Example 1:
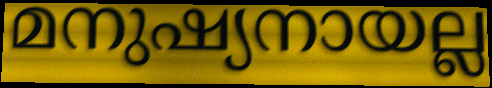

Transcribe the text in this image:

മനുഷ്യനായല്ല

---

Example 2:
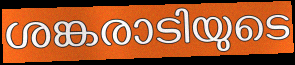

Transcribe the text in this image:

ശങ്കരാടിയുടെ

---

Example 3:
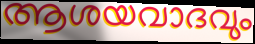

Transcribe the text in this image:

ആശയവാദവും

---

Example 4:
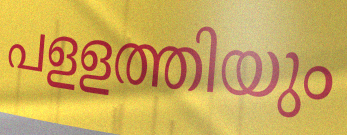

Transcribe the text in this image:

പളളത്തിയും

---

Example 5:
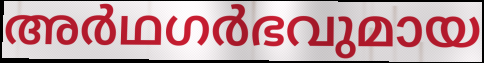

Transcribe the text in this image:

അർഥഗർഭവുമായ